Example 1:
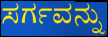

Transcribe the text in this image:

ಸರ್ಗವನ್ನು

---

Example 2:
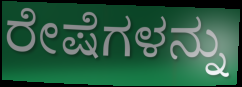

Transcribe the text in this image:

ರೇಷೆಗಳನ್ನು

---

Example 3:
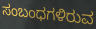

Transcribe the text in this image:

ಸಂಬಂಧಗಳಿರುವ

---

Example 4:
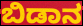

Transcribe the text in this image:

ಬಿಡಾನ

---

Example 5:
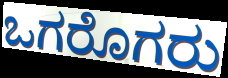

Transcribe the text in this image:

ಒಗರೊಗರು